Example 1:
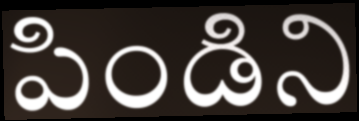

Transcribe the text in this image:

పిండిని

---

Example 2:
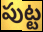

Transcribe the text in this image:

పుట్ట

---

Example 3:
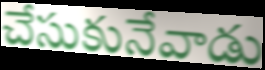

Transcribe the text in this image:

చేసుకునేవాడు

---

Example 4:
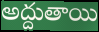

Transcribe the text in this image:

అద్దుతాయి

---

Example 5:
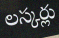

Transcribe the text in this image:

లస్కర్లు